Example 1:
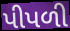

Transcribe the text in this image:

પીપળી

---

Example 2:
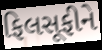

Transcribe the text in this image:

ફિલસૂફીને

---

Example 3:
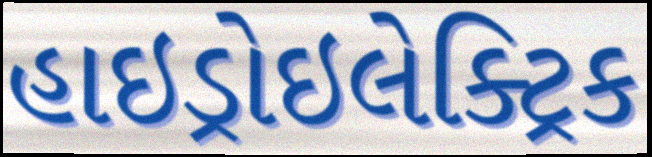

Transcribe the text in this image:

હાઇડ્રોઇલેક્ટ્રિક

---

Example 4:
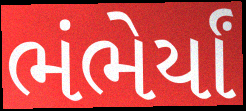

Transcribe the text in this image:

ભંભેર્યાં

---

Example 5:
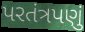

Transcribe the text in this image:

પરતંત્રપણું